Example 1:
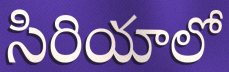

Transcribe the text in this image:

సిరియాలో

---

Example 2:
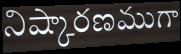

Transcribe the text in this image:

నిష్కారణముగా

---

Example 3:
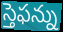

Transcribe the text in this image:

స్తెఫన్ను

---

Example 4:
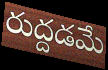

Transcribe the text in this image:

రుద్దడమే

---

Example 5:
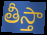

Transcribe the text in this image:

తీస్తా